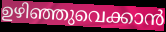
ഉഴിഞ്ഞുവെക്കാൻ